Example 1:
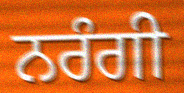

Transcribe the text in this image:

ਨਰੰਗੀ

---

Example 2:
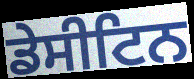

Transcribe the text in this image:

ਡੇਸੀਟਿਨ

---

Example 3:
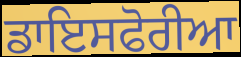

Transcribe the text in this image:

ਡਾਇਸਫੋਰੀਆ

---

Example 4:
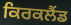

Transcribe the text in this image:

ਕਿਰਕਲੈਂਡ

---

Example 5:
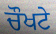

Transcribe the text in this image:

ਚੌਖਟੇ